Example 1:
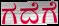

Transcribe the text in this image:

ಗದೆಗೆ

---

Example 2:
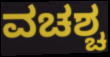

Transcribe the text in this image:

ವಚಶ್ಚ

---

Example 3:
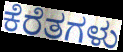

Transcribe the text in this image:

ಕೆರೆತಗಳು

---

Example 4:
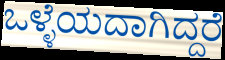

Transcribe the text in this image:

ಒಳ್ಳೆಯದಾಗಿದ್ದರೆ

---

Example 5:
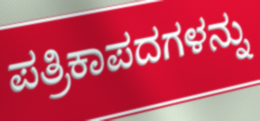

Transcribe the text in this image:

ಪತ್ರಿಕಾಪದಗಳನ್ನು